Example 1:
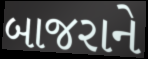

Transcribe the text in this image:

બાજરાને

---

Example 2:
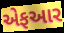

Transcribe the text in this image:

એફઆર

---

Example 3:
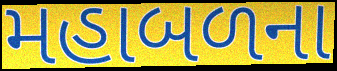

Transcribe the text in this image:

મહાબળના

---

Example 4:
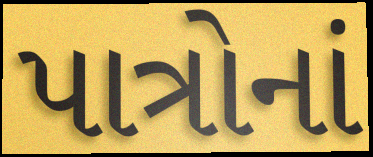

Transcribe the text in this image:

પાત્રોનાં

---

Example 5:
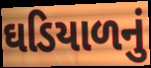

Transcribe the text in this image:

ઘડિયાળનું